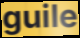
guile